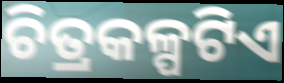
ଚିତ୍ରକଳ୍ପଟିଏ